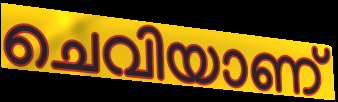
ചെവിയാണ്